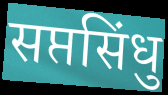
सप्तसिंधु